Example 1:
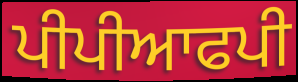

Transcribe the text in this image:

ਪੀਪੀਆਫਪੀ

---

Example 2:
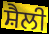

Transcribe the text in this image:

ਸ਼ੈਲੀ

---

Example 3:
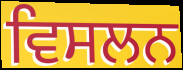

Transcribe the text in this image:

ਵਿਸਲਨ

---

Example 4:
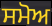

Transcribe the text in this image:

ਸਮੋਅ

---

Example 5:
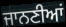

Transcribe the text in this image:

ਜਾਨਣੀਆਂ